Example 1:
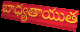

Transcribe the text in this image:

బాధ్యతాయుత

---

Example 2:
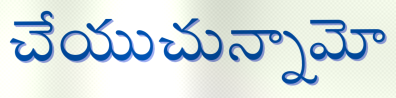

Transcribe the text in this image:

చేయుచున్నామో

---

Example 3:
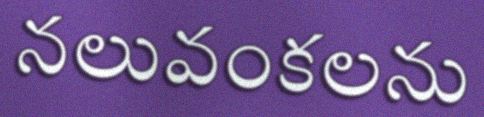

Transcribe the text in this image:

నలువంకలను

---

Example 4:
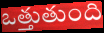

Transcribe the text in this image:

ఒత్తుతుంది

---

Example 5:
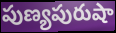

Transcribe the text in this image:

పుణ్యపురుషా